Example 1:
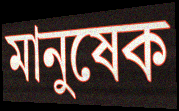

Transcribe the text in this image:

মানুষেক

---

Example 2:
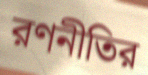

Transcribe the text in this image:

রণনীতির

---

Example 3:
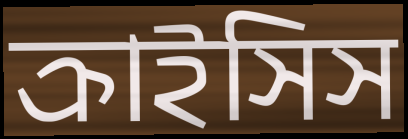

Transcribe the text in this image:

ক্রাইসিস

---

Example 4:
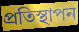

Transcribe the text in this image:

প্রতিস্থাপন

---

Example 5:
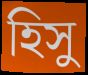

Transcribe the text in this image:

হিসু